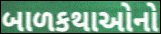
બાળકથાઓનો